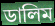
ডালিম